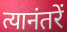
त्यानंतरें